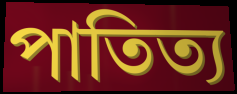
পাতিত্য